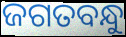
ଜଗତବନ୍ଧୁ